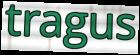
tragus